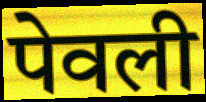
पेवली